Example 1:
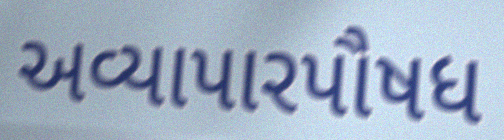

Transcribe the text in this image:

અવ્યાપારપૌષધ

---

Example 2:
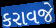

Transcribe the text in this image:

કરાવજે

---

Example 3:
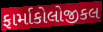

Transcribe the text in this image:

ફાર્માકોલોજીકલ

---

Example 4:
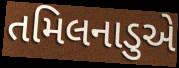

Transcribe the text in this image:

તમિલનાડુએ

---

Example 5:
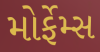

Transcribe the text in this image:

મોર્ફેમ્સ